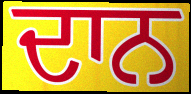
ਦਾਨ